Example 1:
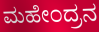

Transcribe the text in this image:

ಮಹೇಂದ್ರನ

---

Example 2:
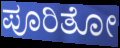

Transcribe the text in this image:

ಪೂರಿತೋ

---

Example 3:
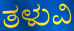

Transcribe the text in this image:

ತಳುವಿ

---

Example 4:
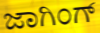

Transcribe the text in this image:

ಜಾಗಿಂಗ್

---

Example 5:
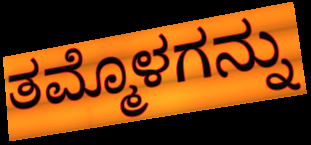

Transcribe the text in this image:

ತಮ್ಮೊಳಗನ್ನು